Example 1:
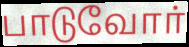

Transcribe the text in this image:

பாடுவோர்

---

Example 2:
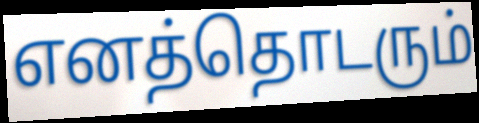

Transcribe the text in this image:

எனத்தொடரும்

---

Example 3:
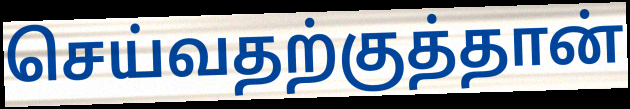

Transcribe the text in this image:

செய்வதற்குத்தான்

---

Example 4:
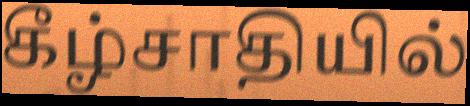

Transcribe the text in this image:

கீழ்சாதியில்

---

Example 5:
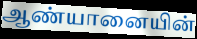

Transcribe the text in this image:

ஆண்யானையின்